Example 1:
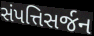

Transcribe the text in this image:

સંપત્તિસર્જન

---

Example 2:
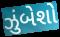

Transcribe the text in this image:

ઝુંબેશો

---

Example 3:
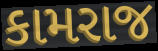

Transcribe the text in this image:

કામરાજ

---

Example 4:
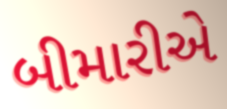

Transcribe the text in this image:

બીમારીએ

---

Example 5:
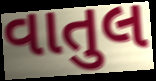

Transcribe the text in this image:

વાતુલ